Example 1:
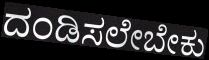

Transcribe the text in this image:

ದಂಡಿಸಲೇಬೇಕು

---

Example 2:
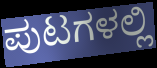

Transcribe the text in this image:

ಪುಟಗಳಲ್ಲಿ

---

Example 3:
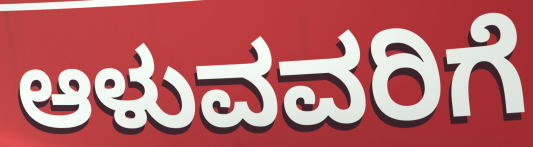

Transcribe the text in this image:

ಆಳುವವರಿಗೆ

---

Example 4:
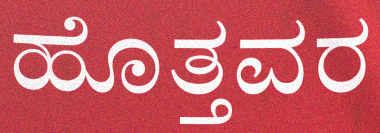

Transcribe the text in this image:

ಹೊತ್ತವರ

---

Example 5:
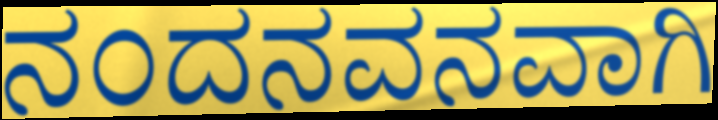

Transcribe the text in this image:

ನಂದನವನವಾಗಿ